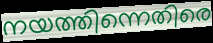
നയത്തിന്നെതിരെ